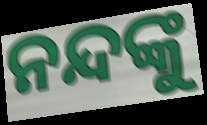
ନନ୍ଦଙ୍କୁ